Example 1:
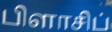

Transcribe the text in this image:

பிளாசிப்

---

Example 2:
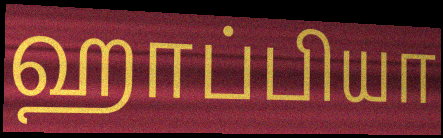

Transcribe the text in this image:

ஹாப்பியா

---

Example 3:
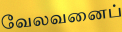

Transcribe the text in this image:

வேலவனைப்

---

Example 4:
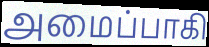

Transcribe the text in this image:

அமைப்பாகி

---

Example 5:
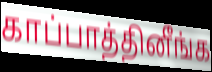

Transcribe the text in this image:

காப்பாத்தினீங்க